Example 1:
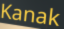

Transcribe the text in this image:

Kanak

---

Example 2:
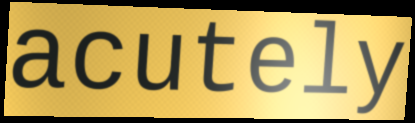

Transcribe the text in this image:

acutely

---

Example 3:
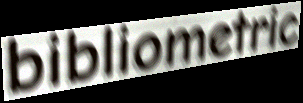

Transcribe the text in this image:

bibliometric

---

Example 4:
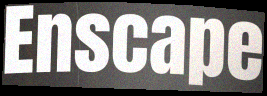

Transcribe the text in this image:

Enscape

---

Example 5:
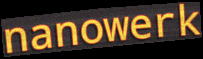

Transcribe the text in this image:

nanowerk